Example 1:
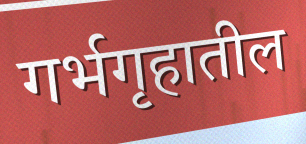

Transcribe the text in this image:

गर्भगृहातील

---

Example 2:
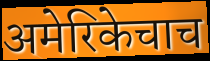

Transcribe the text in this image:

अमेरिकेचाच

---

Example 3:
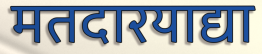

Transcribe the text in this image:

मतदारयाद्या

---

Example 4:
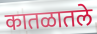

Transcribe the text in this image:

कातळातले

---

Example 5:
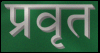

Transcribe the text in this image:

प्रवृत